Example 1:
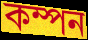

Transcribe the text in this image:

কম্পন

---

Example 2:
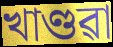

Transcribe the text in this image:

খাণ্ডৱা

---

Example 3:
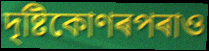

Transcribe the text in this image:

দৃষ্টিকোণৰপৰাও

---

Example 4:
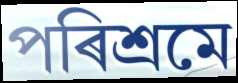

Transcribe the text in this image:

পৰিশ্ৰমে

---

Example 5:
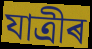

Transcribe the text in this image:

যাত্ৰীৰ